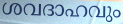
ശവദാഹവും